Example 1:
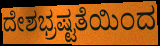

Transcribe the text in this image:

ದೇಶಭ್ರಷ್ಟತೆಯಿಂದ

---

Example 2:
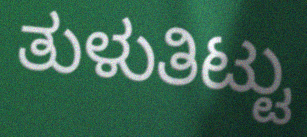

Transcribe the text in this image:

ತುಳುತಿಟ್ಟು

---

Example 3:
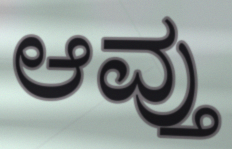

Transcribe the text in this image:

ಆವ್ತು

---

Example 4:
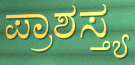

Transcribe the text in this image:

ಪ್ರಾಶಸ್ತ್ಯ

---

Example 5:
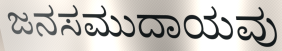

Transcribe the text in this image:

ಜನಸಮುದಾಯವು